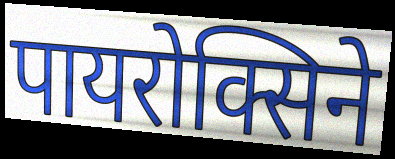
पायरोक्सिने